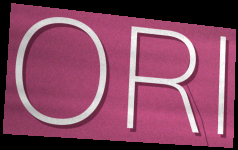
ORI